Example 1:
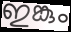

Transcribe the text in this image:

ഇങ്കും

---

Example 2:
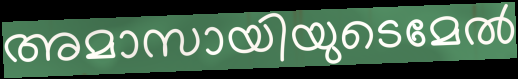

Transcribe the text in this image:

അമാസായിയുടെമേൽ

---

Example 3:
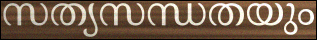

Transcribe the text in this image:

സത്യസന്ധതയും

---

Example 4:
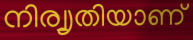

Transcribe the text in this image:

നിര്വൃതിയാണ്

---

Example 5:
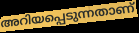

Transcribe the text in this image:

അറിയപ്പെടുന്നതാണ്